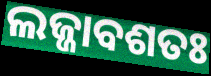
ଲଜ୍ଜାବଶତଃ